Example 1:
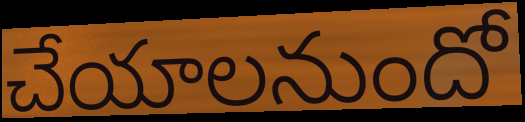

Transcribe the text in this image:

చేయాలనుందో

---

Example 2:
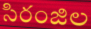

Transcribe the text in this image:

సిరంజిల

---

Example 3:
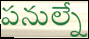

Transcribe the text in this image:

పనుల్నే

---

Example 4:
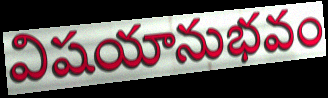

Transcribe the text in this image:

విషయానుభవం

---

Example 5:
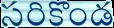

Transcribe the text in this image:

సరికొండ